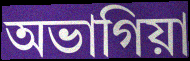
অভাগিয়া